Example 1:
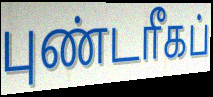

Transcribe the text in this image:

புண்டரீகப்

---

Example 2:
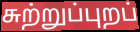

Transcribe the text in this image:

சுற்றுப்புறப்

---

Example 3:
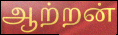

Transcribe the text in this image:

ஆற்றன்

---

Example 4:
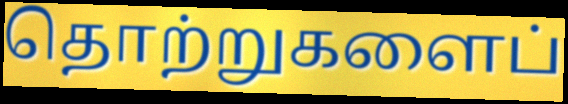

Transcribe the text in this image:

தொற்றுகளைப்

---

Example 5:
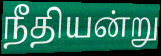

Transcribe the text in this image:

நீதியன்று